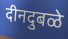
दीनदुबळे